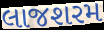
લાજશરમ